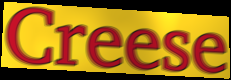
Creese